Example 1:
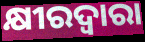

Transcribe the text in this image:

କ୍ଷୀରଦ୍ଵାରା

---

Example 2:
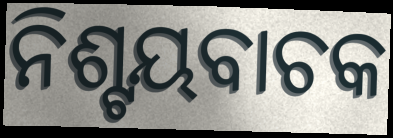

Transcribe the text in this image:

ନିଶ୍ଟୟବାଚକ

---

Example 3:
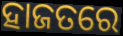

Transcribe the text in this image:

ହାଜତରେ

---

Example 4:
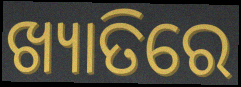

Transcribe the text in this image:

ଖ୍ୟାତିରେ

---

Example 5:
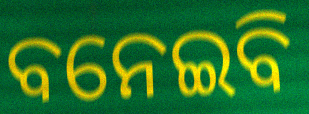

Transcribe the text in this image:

ବନେଇବି